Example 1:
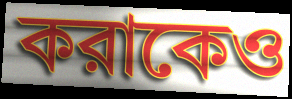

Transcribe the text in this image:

করাকেও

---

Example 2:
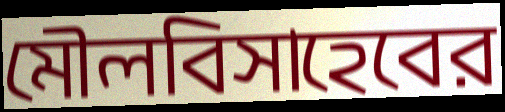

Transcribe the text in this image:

মৌলবিসাহেবের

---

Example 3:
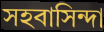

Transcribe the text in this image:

সহবাসিন্দা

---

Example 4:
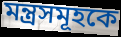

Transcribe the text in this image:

মন্ত্রসমূহকে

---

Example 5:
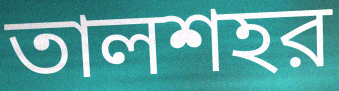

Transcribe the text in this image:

তালশহর